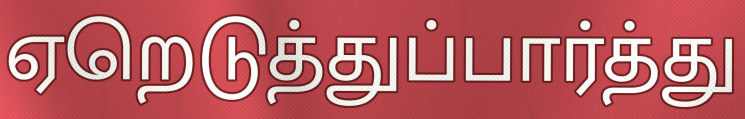
ஏறெடுத்துப்பார்த்து